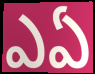
ఎఏ